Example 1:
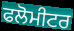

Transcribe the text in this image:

ਫਲੋਮੀਟਰ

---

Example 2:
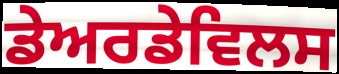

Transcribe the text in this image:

ਡੇਅਰਡੇਵਿਲਸ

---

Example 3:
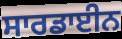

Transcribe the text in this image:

ਸਾਰਡਾਈਨ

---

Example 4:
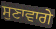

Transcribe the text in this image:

ਸੁਣਾਵਾਗੇ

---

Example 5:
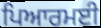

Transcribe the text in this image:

ਪਿਆਰਮਈ